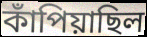
কাঁপিয়াছিল